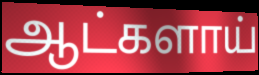
ஆட்களாய்